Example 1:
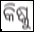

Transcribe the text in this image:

କିଷ୍କୁ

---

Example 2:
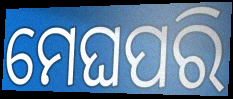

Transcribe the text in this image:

ମେଘପରି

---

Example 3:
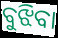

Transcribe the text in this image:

ବୁଝିବା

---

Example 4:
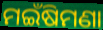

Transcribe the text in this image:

ମଇଁଷିମଣା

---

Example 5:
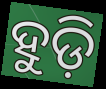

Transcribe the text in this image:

ହୁଡ଼ି